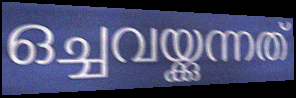
ഒച്ചവയ്ക്കുന്നത്